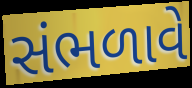
સંભળાવે